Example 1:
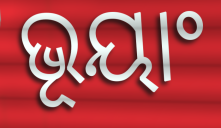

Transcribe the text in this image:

ଭୂୟାଂ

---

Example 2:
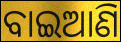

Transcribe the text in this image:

ବାଇଆଣି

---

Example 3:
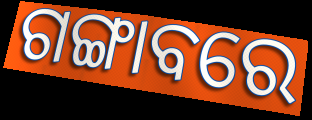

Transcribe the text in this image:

ଗଙ୍ଗାବରେ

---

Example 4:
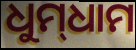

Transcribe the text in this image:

ଧୁମ୍‌ଧାମ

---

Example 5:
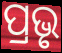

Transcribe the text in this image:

ପ୍ରଭୃ